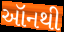
ઑનથી